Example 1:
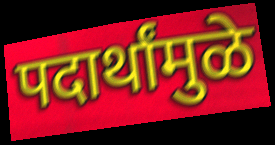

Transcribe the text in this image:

पदार्थांमुळे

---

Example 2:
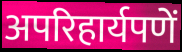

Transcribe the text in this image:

अपरिहार्यपणें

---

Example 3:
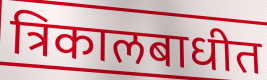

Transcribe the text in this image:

त्रिकालबाधीत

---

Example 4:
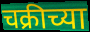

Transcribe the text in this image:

चक्रीच्या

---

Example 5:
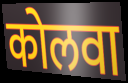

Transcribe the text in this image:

कोलवा